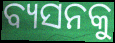
ବ୍ୟସନକୁ